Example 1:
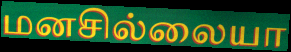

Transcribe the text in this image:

மனசில்லையா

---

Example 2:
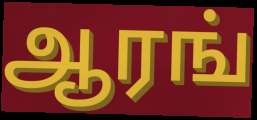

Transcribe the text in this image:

ஆரங்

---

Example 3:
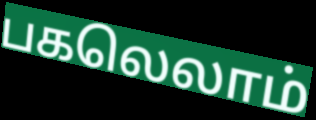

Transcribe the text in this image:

பகலெலாம்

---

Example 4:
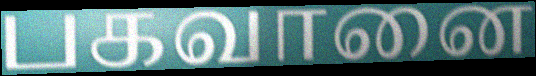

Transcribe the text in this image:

பகவானை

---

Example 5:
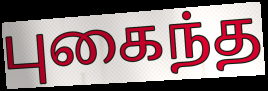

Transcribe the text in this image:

புகைந்த